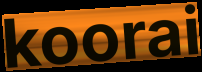
koorai